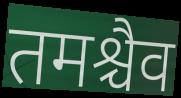
तमश्चैव